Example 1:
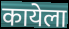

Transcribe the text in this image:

कायेला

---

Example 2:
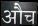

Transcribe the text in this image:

औच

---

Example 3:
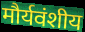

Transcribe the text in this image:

मौर्यवंशीय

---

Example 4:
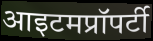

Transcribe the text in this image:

आइटमप्रॉपर्टी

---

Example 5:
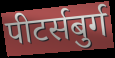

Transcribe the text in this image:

पीटर्सबुर्ग